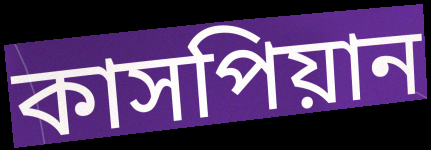
কাসপিয়ান